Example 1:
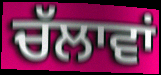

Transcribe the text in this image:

ਚੱਲਾਵਾਂ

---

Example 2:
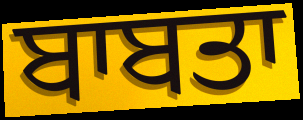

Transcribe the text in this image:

ਬਾਬਤਾ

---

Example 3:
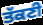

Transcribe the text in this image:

ਤੱਕਣੀ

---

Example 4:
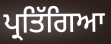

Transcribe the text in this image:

ਪ੍ਰਤਿੱਗਿਆ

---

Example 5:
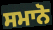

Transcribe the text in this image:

ਸਮਾਨੋ